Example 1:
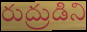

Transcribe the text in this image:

రుద్రుడిని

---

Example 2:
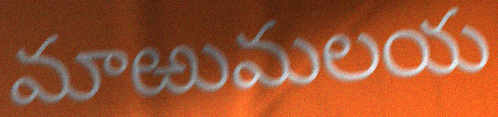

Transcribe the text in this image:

మాఱుమలయ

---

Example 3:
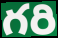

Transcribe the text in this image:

గరి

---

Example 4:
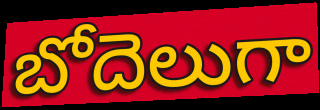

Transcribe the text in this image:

బోదెలుగా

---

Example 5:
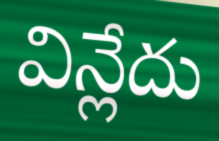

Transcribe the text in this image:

విన్లేదు